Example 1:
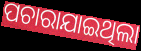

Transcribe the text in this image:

ପଚାରାଯାଇଥିଲା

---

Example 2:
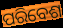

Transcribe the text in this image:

ପରିବେଶ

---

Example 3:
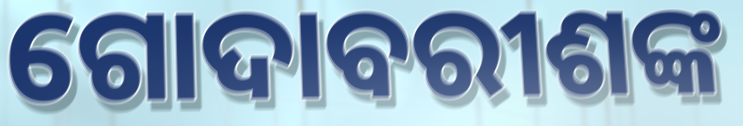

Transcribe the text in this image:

ଗୋଦାବରୀଶଙ୍କ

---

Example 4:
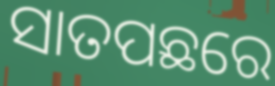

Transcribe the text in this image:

ସାତପଛରେ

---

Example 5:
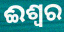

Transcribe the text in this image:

ଈଶ୍ବର